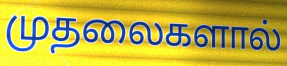
முதலைகளால்